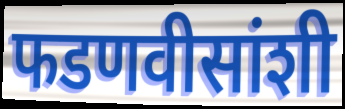
फडणवीसांशी